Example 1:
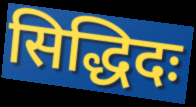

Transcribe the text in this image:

सिद्धिदः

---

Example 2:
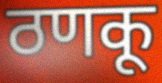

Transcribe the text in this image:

ठणकू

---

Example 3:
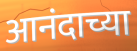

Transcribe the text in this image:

आनंदाच्या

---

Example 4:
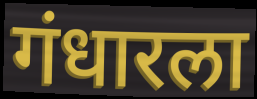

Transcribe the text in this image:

गंधारला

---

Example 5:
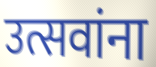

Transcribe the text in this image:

उत्सवांना